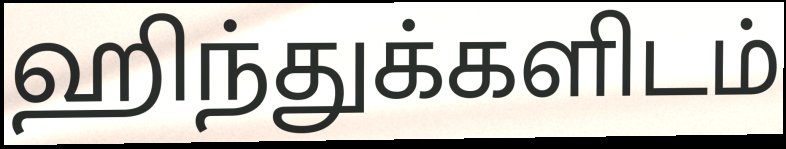
ஹிந்துக்களிடம்